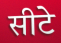
सीटे